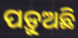
ପଡ଼ୁଅଛି